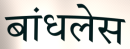
बांधलेस